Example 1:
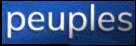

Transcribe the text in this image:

peuples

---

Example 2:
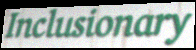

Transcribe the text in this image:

Inclusionary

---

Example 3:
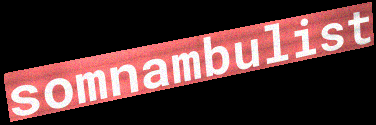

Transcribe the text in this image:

somnambulist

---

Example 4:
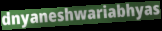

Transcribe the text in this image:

dnyaneshwariabhyas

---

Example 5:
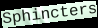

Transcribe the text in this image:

Sphincters